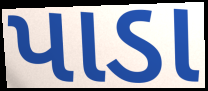
પાડા